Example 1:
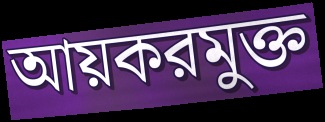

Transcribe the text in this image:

আয়করমুক্ত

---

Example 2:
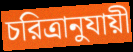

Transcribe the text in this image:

চরিত্রানুযায়ী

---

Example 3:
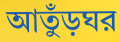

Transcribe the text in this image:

আতুঁড়ঘর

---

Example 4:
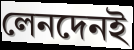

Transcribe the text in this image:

লেনদেনই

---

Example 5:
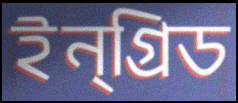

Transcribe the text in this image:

ইন্‌গ্রিড